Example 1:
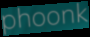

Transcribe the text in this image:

phoonk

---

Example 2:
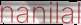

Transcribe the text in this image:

nanilal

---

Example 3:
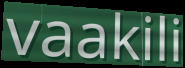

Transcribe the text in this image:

vaakili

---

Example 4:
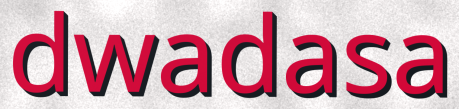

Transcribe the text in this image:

dwadasa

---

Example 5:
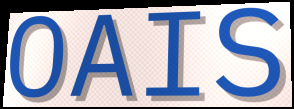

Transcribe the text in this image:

OAIS